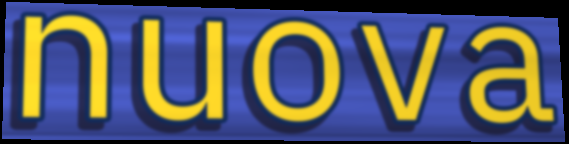
nuova